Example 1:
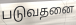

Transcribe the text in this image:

படுவதனை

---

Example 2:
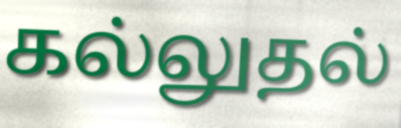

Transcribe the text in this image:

கல்லுதல்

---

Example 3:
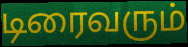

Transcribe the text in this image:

டிரைவரும்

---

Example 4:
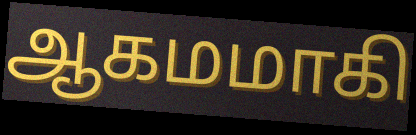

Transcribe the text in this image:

ஆகமமாகி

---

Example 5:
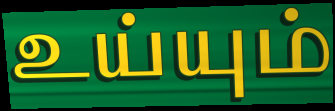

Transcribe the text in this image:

உய்யும்